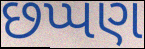
છપ્પણ